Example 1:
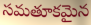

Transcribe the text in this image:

సమతూకమైన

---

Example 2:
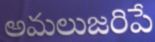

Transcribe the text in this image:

అమలుజరిపే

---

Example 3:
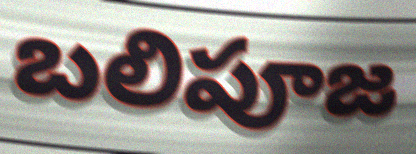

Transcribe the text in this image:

బలిపూజ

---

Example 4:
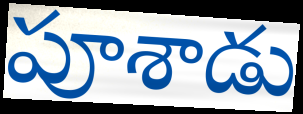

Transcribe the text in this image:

పూశాడు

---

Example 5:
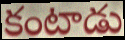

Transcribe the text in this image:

కంటాడు